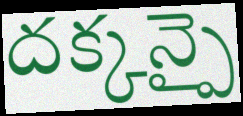
దక్కన్పై